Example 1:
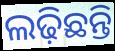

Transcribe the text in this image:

ଲଢ଼ିଛନ୍ତି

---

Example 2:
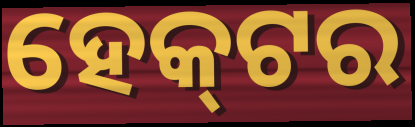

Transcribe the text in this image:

ହେକ୍‌ଟର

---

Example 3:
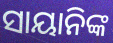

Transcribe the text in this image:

ସାୟାନିଙ୍କ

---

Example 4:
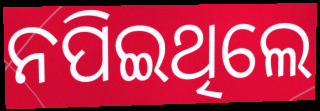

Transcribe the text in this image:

ନପିଇଥିଲେ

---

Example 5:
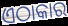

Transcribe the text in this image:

ଏଠାକାର